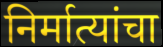
निर्मात्यांचा